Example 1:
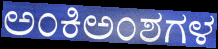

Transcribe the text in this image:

ಅಂಕಿಅಂಶಗಳ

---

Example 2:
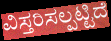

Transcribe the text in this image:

ವಿಸ್ತರಿಸಲ್ಪಟ್ಟಿದೆ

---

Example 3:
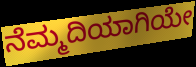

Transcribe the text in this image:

ನೆಮ್ಮದಿಯಾಗಿಯೇ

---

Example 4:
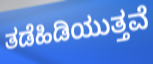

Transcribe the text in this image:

ತಡೆಹಿಡಿಯುತ್ತವೆ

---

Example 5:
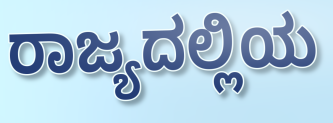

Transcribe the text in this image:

ರಾಜ್ಯದಲ್ಲಿಯ